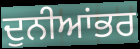
ਦੁਨੀਆਂਭਰ